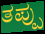
ತಪ್ಪು